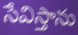
సేవిస్తాను